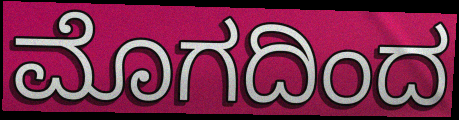
ಮೊಗದಿಂದ